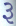
રૂ